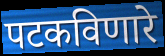
पटकविणारे